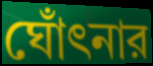
ঘোঁৎনার